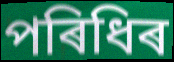
পৰিধিৰ